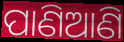
ପାଣିଆଣି